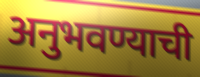
अनुभवण्याची